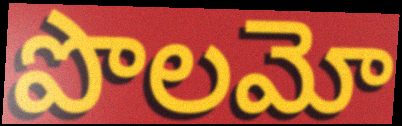
పొలమో